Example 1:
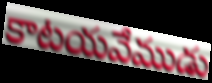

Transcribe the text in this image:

కాటయవేముడు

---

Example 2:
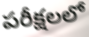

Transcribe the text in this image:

పరీక్షలలో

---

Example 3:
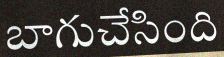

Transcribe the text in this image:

బాగుచేసింది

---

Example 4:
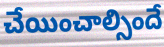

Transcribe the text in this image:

చేయించాల్సిందే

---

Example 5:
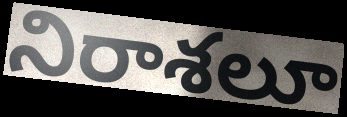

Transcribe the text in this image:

నిరాశలూ